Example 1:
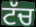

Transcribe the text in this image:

ਟੱਚ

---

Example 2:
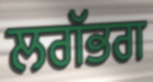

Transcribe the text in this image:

ਲਗੱਭਗ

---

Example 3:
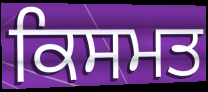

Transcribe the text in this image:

ਕਿਸਮਤ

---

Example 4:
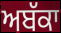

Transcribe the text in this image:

ਅਬੱਕਾ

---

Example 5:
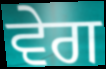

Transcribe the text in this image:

ਵੇਗ